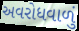
અવરોધવાળું